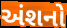
અંશનો